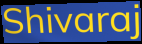
Shivaraj